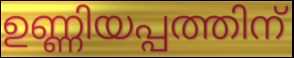
ഉണ്ണിയപ്പത്തിന്